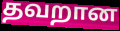
தவறான